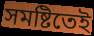
সমষ্টিতেই